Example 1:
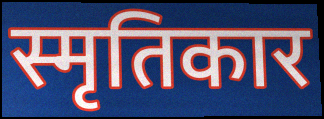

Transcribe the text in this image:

स्मृतिकार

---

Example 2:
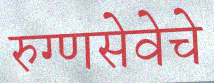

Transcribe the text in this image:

रुग्णसेवेचे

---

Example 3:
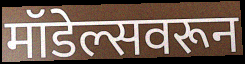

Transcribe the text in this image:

मॉडेल्सवरून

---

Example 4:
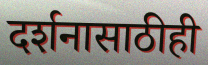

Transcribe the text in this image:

दर्शनासाठीही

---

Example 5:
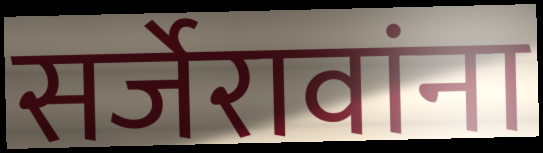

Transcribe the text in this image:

सर्जेरावांना